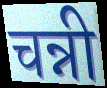
चन्नी